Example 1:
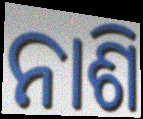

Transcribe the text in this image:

ନାଶି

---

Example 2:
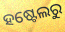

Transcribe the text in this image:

ହଷ୍ଟେଲରୁ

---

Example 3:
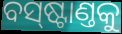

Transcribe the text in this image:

ବସ୍‌ଷ୍ଟାଣ୍ତକୁ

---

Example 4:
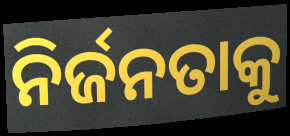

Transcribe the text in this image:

ନିର୍ଜନତାକୁ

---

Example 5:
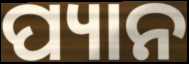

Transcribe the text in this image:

ପ୍ୟାନ